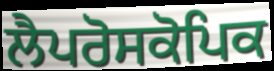
ਲੈਪਰੋਸਕੋਪਿਕ